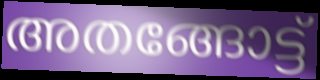
അതങ്ങോട്ട്